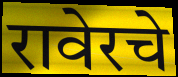
रावेरचे